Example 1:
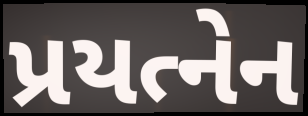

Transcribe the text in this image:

પ્રયત્નેન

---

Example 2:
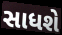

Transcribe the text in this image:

સાધશે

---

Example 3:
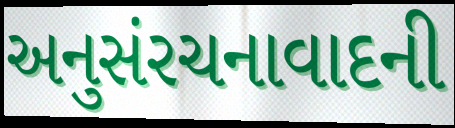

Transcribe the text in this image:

અનુસંરચનાવાદની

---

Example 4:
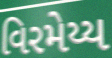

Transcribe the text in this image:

વિરમેય્ય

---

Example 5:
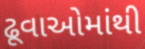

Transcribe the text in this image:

ઢૂવાઓમાંથી